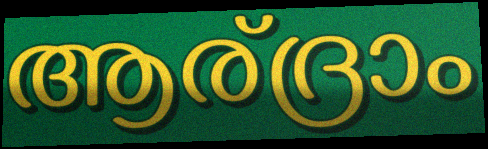
ആര്ദ്രാം